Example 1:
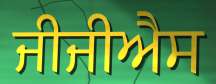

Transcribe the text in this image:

ਜੀਜੀਐਸ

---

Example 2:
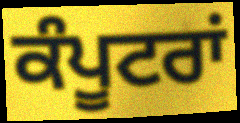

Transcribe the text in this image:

ਕੰਪੂਟਰਾਂ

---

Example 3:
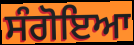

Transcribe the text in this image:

ਸੰਗੋਇਆ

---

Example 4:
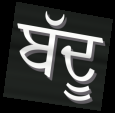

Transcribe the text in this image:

ਬੱਦੂ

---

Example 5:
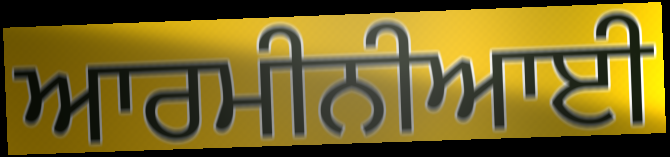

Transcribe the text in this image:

ਆਰਮੀਨੀਆਈ